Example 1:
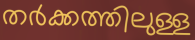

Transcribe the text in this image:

തർക്കത്തിലുള്ള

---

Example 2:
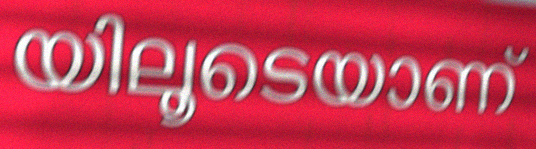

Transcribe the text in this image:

യിലൂടെയാണ്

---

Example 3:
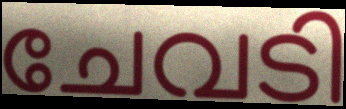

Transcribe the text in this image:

ചേവടി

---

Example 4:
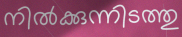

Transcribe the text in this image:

നിൽക്കുന്നിടത്തു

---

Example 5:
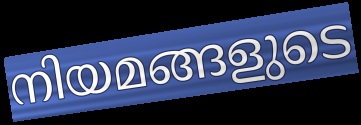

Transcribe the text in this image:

നിയമങ്ങളുടെ